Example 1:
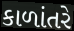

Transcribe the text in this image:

કાળાંતરે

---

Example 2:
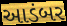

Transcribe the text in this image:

આડંબર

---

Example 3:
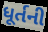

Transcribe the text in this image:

ધૂર્તની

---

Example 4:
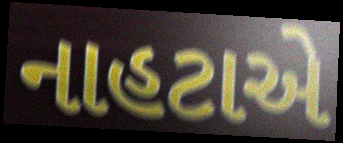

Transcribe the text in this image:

નાહટાએ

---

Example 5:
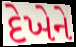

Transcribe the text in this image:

દેખેને